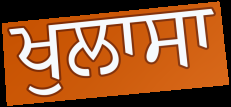
ਖੁਲਾਸਾ